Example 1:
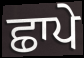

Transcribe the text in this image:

ਛਾਪੇ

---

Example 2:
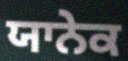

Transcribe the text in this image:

ਯਾਨੇਕ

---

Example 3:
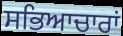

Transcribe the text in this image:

ਸਭਿਆਚਾਰਾਂ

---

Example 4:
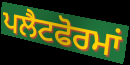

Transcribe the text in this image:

ਪਲੈਟਫੋਰਮਾਂ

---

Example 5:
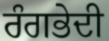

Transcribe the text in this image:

ਰੰਗਭੇਦੀ